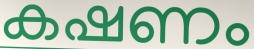
കഷണം